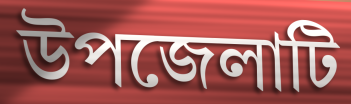
উপজেলাটি